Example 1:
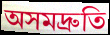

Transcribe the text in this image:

অসমদ্রুতি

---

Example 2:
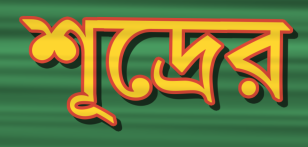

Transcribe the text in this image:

শূদ্রের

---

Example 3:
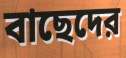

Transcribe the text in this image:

বাছেদের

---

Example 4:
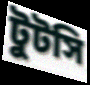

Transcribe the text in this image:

টুটসি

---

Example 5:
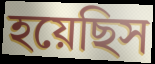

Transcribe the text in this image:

হয়েছিস